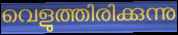
വെളുത്തിരിക്കുന്നു